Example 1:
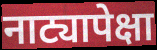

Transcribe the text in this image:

नाट्यापेक्षा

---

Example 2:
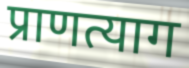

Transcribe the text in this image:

प्राणत्याग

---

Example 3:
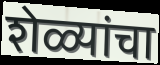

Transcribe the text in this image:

शेळ्यांचा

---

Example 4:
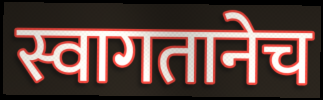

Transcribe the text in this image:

स्वागतानेच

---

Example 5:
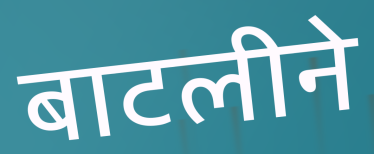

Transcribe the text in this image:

बाटलीने